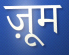
ज़ूम